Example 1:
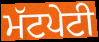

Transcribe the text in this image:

ਮੱਟਪੇਟੀ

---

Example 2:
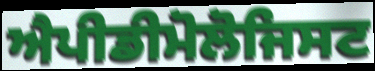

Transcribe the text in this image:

ਐਪੀਡੀਮੋਲੋਜਿਸਟ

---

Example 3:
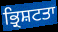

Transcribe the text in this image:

ਭ੍ਰਿਸ਼ਟਤਾ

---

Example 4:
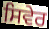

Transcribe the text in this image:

ਸਿਵੇਰ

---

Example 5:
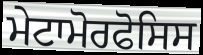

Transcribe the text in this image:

ਮੇਟਾਮੋਰਫੋਸਿਸ